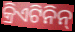
କ୍ରିଏଟିନିନ୍